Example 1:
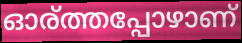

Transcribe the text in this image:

ഓര്ത്തപ്പോഴാണ്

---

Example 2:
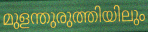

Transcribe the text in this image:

മുളന്തുരുത്തിയിലും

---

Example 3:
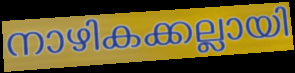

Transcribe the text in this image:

നാഴികക്കല്ലായി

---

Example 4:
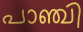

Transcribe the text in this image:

പാഞ്ചി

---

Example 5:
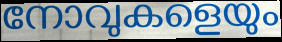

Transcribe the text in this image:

നോവുകളെയും